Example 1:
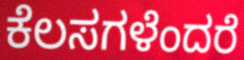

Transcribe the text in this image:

ಕೆಲಸಗಳೆಂದರೆ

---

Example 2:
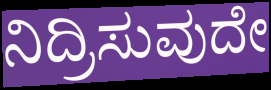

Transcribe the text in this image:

ನಿದ್ರಿಸುವುದೇ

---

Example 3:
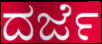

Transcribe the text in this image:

ದರ್ಜೆ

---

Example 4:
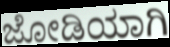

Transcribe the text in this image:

ಜೋಡಿಯಾಗಿ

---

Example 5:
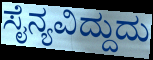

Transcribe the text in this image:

ಸೈನ್ಯವಿದ್ದುದು